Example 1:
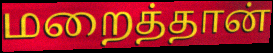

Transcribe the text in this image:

மறைத்தான்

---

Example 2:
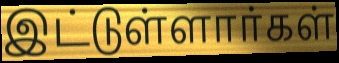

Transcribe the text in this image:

இட்டுள்ளார்கள்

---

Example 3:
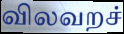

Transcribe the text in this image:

விலவறச்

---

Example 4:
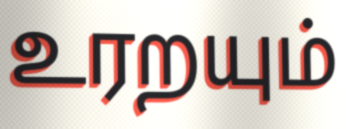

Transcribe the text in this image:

உரறயும்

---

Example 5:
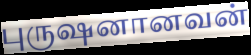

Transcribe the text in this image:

புருஷனானவன்